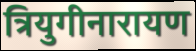
त्रियुगीनारायण